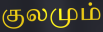
குலமும்